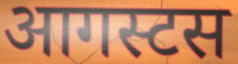
आगस्टस